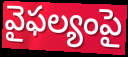
వైఫల్యంపై